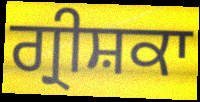
ਗ੍ਰੀਸ਼ਕਾ